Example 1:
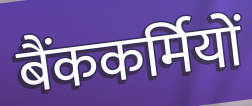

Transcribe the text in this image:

बैंककर्मियों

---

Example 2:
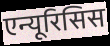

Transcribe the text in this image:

एन्यूरिसिस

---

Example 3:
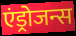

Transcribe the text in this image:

एंड्रोजन्स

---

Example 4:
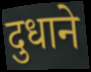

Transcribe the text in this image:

दुधाने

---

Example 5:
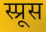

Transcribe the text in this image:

स्प्रूस